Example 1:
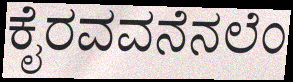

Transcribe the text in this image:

ಕೈರವವನೆನಲೆಂ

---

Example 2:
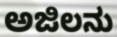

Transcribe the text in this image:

ಅಜಿಲನು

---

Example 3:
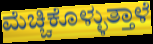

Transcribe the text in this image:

ಮೆಚ್ಚಿಕೊಳ್ಳುತ್ತಾಳೆ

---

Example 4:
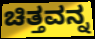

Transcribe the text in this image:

ಚಿತ್ತವನ್ನ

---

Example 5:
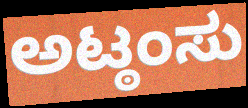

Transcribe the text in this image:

ಅಟ್ಠಂಸು